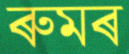
ৰুমৰ